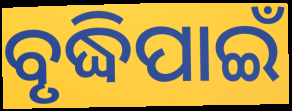
ବୃଦ୍ଧିପାଇଁ